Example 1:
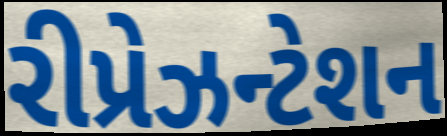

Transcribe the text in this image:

રીપ્રેઝન્ટેશન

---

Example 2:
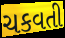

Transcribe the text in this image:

ચકવતી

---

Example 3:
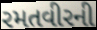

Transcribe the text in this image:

રમતવીરની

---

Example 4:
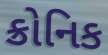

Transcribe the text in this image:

ક્રોનિક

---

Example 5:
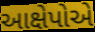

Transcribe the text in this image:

આક્ષેપોએ